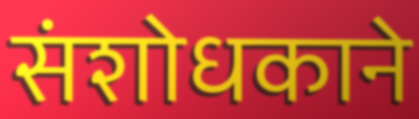
संशोधकाने